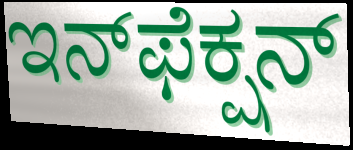
ಇನ್‌ಫೆಕ್ಷನ್